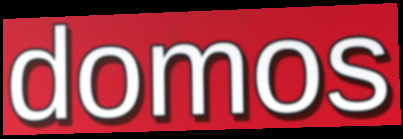
domos